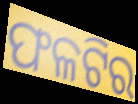
ଫଳଟିର